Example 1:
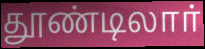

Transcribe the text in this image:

தூண்டிலார்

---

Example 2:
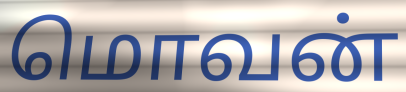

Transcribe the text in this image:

மொவன்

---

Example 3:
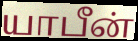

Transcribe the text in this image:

யாபீன்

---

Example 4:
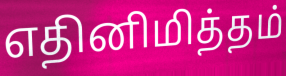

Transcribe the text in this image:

எதினிமித்தம்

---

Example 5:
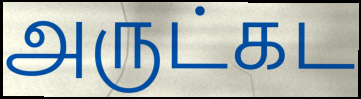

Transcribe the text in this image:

அருட்கட